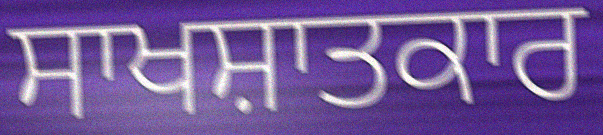
ਸਾਖਸ਼ਾਤਕਾਰ